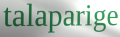
talaparige